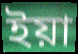
ইয়া